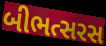
બીભત્સરસ